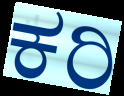
ಕರಿ